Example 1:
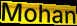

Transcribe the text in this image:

Mohan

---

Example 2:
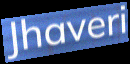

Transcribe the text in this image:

Jhaveri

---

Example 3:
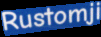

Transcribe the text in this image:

Rustomji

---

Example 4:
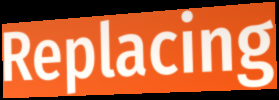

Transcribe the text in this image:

Replacing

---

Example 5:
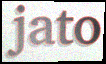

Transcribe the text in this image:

jato